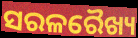
ସରଳରୈଖ୍ୟ